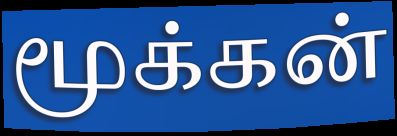
மூக்கன்